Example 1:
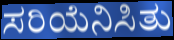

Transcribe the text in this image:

ಸರಿಯೆನಿಸಿತು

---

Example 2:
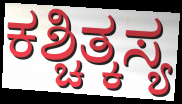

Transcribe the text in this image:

ಕಶ್ಚಿತ್ಕಸ್ಯ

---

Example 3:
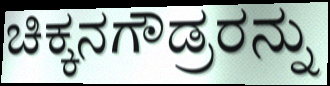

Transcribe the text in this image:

ಚಿಕ್ಕನಗೌಡ್ರರನ್ನು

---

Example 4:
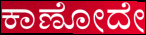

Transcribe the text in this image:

ಕಾಣೋದೇ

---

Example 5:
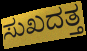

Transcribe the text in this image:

ಸುಖದತ್ತ